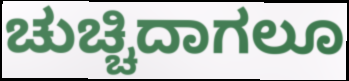
ಚುಚ್ಚಿದಾಗಲೂ